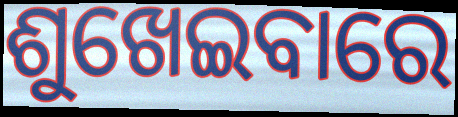
ଶୁଖେଇବାରେ